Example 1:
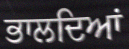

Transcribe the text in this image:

ਭਾਲਦਿਆਂ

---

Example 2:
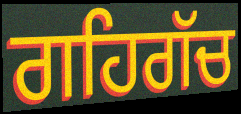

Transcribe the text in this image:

ਗਹਿਗੱਚ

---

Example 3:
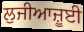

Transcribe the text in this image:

ਲੁਜੀਆਜ਼ੂਈ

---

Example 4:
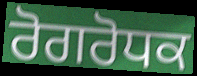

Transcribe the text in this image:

ਰੋਗਰੋਧਕ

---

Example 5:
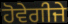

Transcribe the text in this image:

ਹੋਵੇਗੀਜੇ